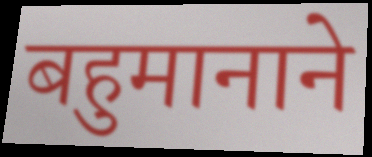
बहुमानाने